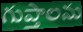
గుప్తాలను